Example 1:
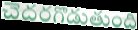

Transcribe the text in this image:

చెదరగొడుతుంది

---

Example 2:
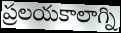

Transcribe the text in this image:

ప్రలయకాలాగ్ని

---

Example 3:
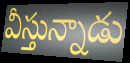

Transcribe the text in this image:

వీస్తున్నాడు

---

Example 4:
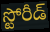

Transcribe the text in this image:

స్టోరీడ్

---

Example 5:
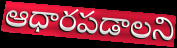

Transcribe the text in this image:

ఆధారపడాలని